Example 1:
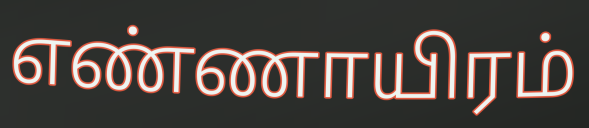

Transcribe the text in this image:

எண்ணாயிரம்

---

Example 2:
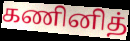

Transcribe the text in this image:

கணினித்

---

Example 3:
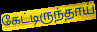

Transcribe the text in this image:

கேட்டிருந்தாய்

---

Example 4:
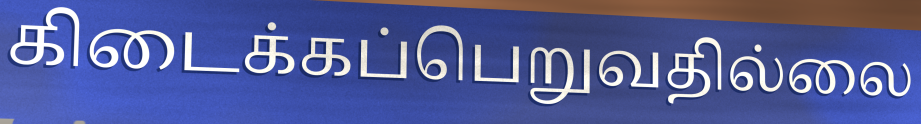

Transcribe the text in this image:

கிடைக்கப்பெறுவதில்லை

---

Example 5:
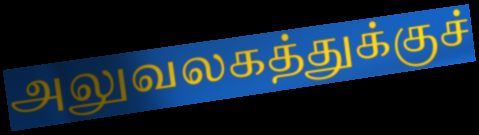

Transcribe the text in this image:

அலுவலகத்துக்குச்